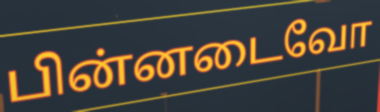
பின்னடைவோ